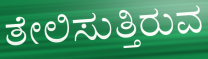
ತೇಲಿಸುತ್ತಿರುವ